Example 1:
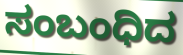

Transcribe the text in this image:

ಸಂಬಂಧಿದ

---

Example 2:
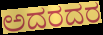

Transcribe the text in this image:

ಅದರದರ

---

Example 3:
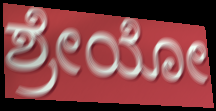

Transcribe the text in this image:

ಶ್ರೇಯೋ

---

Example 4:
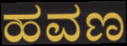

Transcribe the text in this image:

ಹವಣ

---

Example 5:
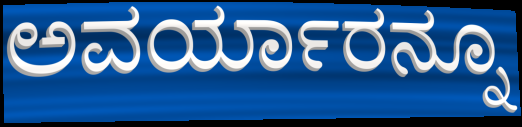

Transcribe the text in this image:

ಅವರ್ಯಾರನ್ನೂ